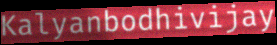
Kalyanbodhivijay